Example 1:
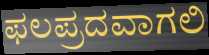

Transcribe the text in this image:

ಫಲಪ್ರದವಾಗಲಿ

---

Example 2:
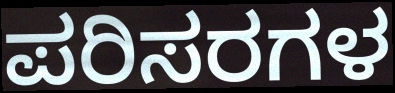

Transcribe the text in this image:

ಪರಿಸರಗಳ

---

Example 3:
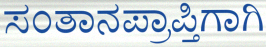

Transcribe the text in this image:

ಸಂತಾನಪ್ರಾಪ್ತಿಗಾಗಿ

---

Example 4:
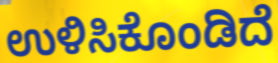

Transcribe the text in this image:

ಉಳಿಸಿಕೊಂಡಿದೆ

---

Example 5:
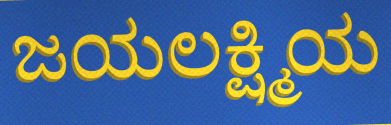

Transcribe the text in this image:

ಜಯಲಕ್ಷ್ಮಿಯ